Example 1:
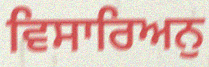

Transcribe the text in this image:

ਵਿਸਾਰਿਅਨੁ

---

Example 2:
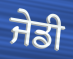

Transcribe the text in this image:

ਜੇਡੀ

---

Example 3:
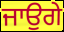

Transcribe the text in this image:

ਜਾਉਗੇ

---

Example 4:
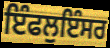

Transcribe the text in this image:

ਇੰਫਲੁਇੰਸਰ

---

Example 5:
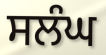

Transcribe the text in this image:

ਸਲੰਘ